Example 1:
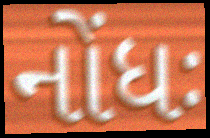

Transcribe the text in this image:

નોંધઃ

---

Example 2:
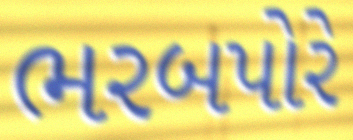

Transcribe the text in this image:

ભરબપોરે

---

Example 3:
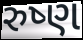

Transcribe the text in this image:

રુષ્ણ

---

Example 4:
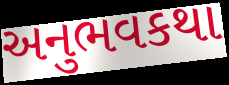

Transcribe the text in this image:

અનુભવકથા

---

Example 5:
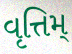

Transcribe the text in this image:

વૃત્તિમ્